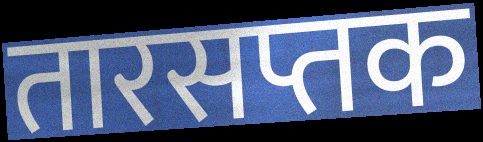
तारसप्तक